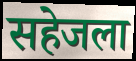
सहेजला